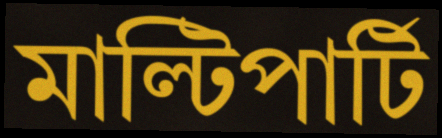
মাল্টিপার্টি